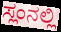
ಸ್ಲಂನಲ್ಲಿ